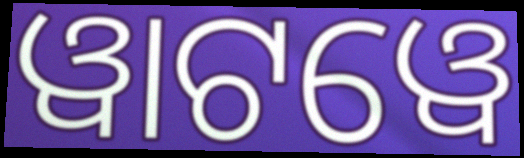
ୱାଟୱେ